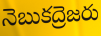
నెబుకద్రెజరు